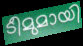
ടീമുമായി